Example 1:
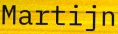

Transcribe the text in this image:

Martijn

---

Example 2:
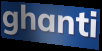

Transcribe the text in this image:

ghanti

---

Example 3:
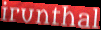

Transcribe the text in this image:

irunthal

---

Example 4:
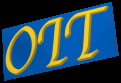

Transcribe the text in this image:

OIT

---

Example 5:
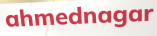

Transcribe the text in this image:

ahmednagar